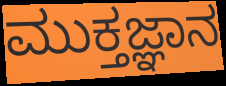
ಮುಕ್ತಜ್ಞಾನ